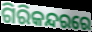
ଗିରିକନ୍ଦରରେ